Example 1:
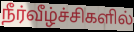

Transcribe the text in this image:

நீர்வீழ்ச்சிகளில்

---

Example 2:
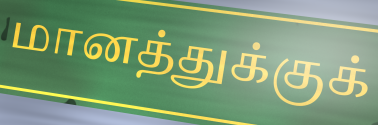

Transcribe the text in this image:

மானத்துக்குக்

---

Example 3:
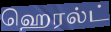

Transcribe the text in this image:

ஹெரல்ட்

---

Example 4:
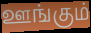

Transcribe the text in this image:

ஊங்கும்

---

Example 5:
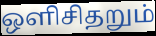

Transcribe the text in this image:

ஒளிசிதறும்